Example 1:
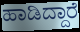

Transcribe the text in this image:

ಹಾಡಿದ್ದಾರೆ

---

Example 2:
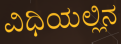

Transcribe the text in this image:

ವಿಧಿಯಲ್ಲಿನ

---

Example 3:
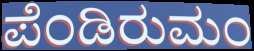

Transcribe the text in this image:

ಪೆಂಡಿರುಮಂ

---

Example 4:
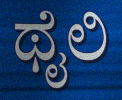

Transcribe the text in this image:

ಥೈಲಿ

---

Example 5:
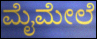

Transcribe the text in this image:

ಮೈಮೇಲೆ